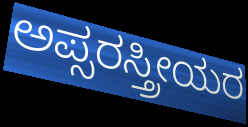
ಅಪ್ಸರಸ್ತ್ರೀಯರ